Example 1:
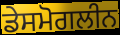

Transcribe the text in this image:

ਡੇਸਮੋਗਲੀਨ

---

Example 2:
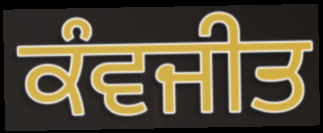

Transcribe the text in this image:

ਕੰਵਜੀਤ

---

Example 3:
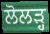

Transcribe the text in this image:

ਲੋਲੜ੍ਹ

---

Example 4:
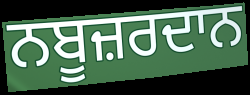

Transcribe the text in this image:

ਨਬੂਜ਼ਰਦਾਨ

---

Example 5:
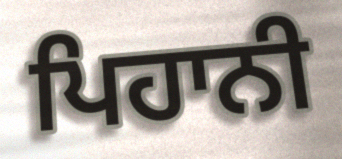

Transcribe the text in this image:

ਪਿਹਾਨੀ